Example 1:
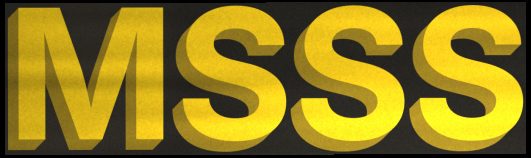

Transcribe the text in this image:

MSSS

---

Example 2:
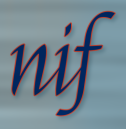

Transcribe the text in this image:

nif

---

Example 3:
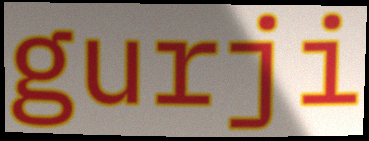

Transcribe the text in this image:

gurji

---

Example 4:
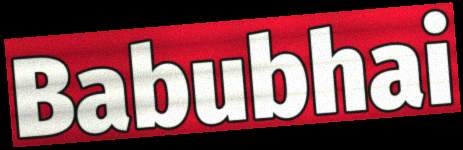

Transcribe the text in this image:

Babubhai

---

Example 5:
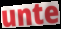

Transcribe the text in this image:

unte